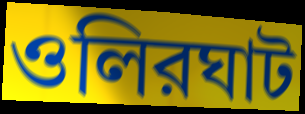
ওলিরঘাট